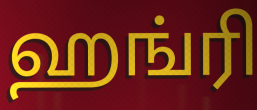
ஹங்ரி